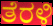
ತೆರಳಿ